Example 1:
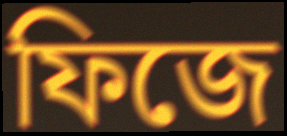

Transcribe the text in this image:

ফিজে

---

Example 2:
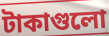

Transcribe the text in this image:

টাকাগুলো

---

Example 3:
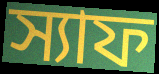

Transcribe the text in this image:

স্যাফ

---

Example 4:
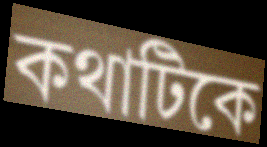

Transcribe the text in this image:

কথাটিকে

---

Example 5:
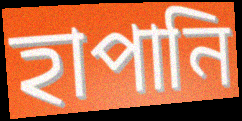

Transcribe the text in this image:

হাপানি